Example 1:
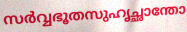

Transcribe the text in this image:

സർവ്വഭൂതസുഹൃച്ഛാന്തോ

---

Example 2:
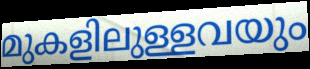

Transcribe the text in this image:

മുകളിലുള്ളവയും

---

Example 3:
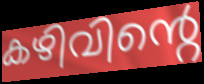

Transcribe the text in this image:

കഴിവിന്റെ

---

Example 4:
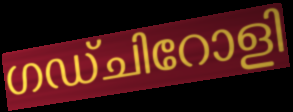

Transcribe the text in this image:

ഗഡ്ചിറോളി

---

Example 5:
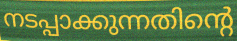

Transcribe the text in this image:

നടപ്പാക്കുന്നതിന്റെ